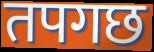
तपगछ